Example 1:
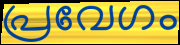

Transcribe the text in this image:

പ്രവേഗം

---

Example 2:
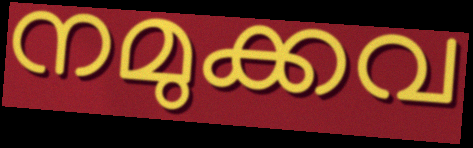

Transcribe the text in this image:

നമുക്കവ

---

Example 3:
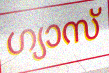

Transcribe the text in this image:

ഗ്യാസ്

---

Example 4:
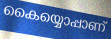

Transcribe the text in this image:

കൈയ്യൊപ്പാണ്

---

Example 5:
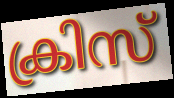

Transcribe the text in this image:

ക്രിസ്